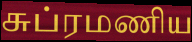
சுப்ரமணிய